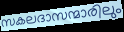
സകലദാസന്മാരിലും